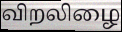
விறலிழை